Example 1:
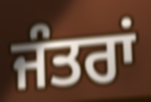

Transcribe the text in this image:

ਜੰਤਰਾਂ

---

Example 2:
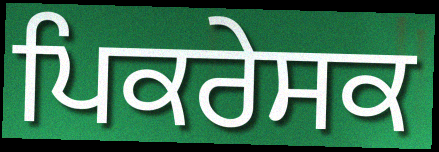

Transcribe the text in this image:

ਪਿਕਰੇਸਕ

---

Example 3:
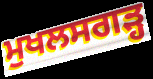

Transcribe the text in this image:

ਮੁਖਲਸਗੜ੍ਹ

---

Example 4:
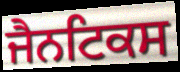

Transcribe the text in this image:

ਜੈਨਟਿਕਸ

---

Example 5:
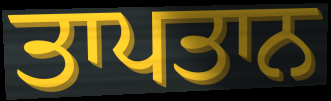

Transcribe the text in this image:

ਤਾਪਤਾਨ